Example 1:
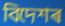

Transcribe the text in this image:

বিদেশৰ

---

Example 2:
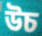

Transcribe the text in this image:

উচ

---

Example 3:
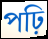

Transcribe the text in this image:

পঢ়ি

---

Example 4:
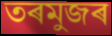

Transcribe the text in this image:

তৰমুজৰ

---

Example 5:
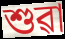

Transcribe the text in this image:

শুৱা